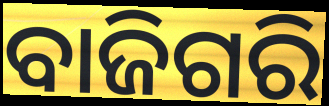
ବାଜିଗରି